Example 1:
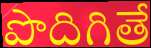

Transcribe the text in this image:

పొదిగితే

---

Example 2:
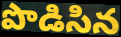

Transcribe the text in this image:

పొడిసిన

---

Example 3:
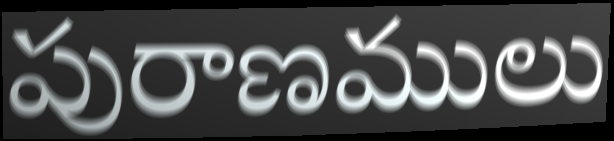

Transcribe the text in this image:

పురాణములు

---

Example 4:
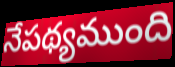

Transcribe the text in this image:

నేపథ్యముంది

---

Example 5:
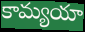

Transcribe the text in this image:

కామ్యయా